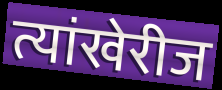
त्यांखेरीज